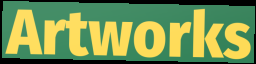
Artworks